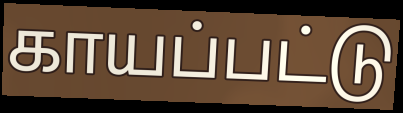
காயப்பட்டு